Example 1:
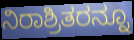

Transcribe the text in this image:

ನಿರಾಶ್ರಿತರನ್ನೂ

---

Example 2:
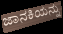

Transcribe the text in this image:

ಜಾನಕಿಯನ್ನು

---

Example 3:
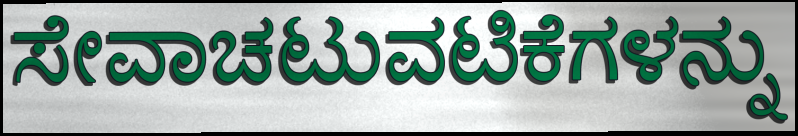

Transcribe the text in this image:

ಸೇವಾಚಟುವಟಿಕೆಗಳನ್ನು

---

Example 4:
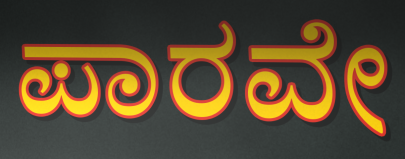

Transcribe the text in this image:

ಪಾರವೇ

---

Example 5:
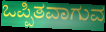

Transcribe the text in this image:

ಒಪ್ಪಿತವಾಗುವ